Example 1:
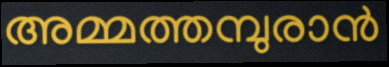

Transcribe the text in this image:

അമ്മത്തമ്പുരാൻ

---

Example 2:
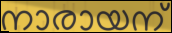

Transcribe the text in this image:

നാരായന്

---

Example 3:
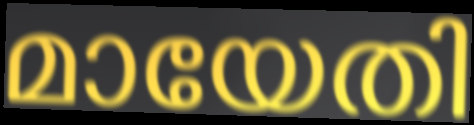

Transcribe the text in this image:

മായേതി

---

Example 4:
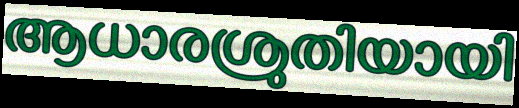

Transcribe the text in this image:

ആധാരശ്രുതിയായി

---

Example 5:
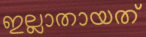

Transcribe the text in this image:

ഇല്ലാതായത്